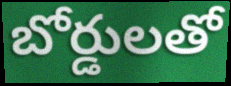
బోర్డులతో